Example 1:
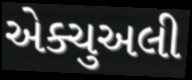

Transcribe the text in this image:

એક્ચુઅલી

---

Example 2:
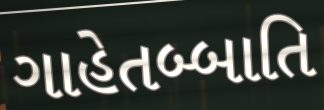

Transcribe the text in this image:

ગાહેતબ્બાતિ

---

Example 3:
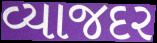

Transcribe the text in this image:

વ્યાજદર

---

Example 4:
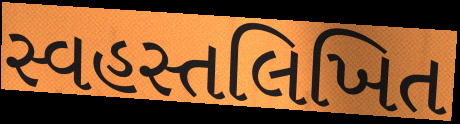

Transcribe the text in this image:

સ્વહસ્તલિખિત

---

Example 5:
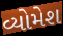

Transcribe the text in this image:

વ્યોમેશ